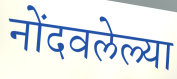
नोंदवलेल्या